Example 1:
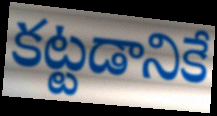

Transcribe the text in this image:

కట్టడానికే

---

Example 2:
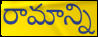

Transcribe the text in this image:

రామాన్ని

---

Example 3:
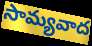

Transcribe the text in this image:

సామ్యవాద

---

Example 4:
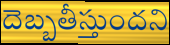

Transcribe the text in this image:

దెబ్బతీస్తుందని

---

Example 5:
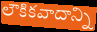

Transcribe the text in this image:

లౌకికవాదాన్ని